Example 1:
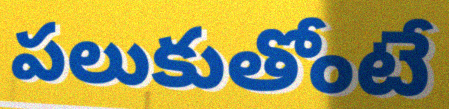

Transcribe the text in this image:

పలుకుతోంటే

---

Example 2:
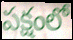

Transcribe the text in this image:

పక్షంలో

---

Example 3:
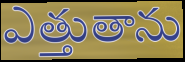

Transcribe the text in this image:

ఎత్తుతాను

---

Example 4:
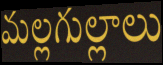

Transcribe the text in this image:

మల్లగుల్లాలు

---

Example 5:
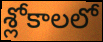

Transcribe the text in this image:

శ్లోకాలలో